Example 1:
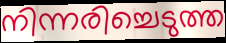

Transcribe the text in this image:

നിന്നരിച്ചെടുത്ത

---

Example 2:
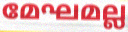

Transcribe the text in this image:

മേഘമല്ല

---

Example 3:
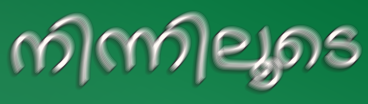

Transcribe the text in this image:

നിന്നിലൂടെ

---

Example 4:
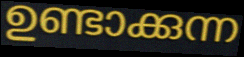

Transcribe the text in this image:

ഉണ്ടാക്കുന്ന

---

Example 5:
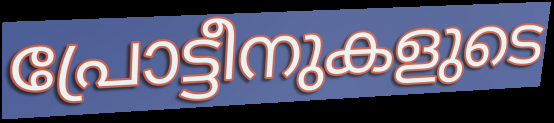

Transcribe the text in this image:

പ്രോട്ടീനുകളുടെ